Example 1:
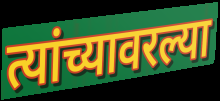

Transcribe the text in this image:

त्यांच्यावरल्या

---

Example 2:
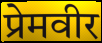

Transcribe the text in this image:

प्रेमवीर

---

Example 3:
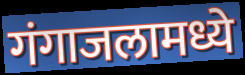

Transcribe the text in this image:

गंगाजलामध्ये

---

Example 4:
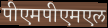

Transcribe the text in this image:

पीएमपीएमएल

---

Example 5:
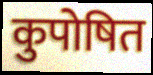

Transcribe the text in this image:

कुपोषित